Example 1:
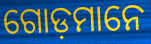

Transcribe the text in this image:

ଗୋଡ଼ମାନେ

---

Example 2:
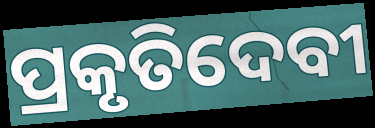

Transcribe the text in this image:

ପ୍ରକୃତିଦେବୀ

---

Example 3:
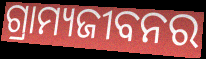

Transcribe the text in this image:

ଗ୍ରାମ୍ୟଜୀବନର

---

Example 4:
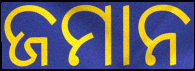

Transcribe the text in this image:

ଜମାନ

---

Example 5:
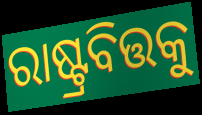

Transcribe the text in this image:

ରାଷ୍ଟ୍ରବିତ୍ତକୁ